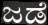
ಜಡೆ